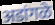
अडांगळे